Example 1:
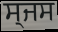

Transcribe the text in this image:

ਸ੍ਜਸ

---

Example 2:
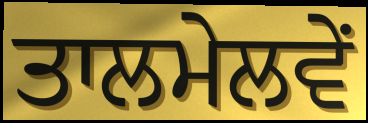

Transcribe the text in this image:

ਤਾਲਮੇਲਵੇਂ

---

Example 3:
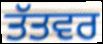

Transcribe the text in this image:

ਤੱਤਵਰ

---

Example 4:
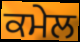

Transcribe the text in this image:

ਕਮੇਲ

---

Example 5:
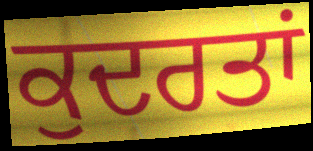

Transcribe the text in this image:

ਕੁਦਰਤਾਂ